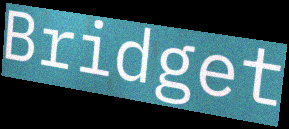
Bridget